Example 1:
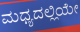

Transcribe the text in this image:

ಮಧ್ಯದಲ್ಲಿಯೇ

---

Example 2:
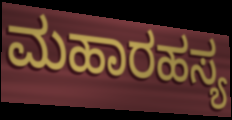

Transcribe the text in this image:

ಮಹಾರಹಸ್ಯ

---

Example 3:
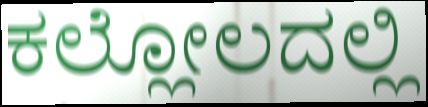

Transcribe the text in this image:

ಕಲ್ಲೋಲದಲ್ಲಿ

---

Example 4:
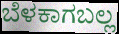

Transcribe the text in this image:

ಬೆಳಕಾಗಬಲ್ಲ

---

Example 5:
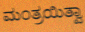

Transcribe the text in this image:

ಮಂತ್ರಯಿತ್ವಾ